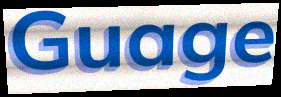
Guage